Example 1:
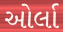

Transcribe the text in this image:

ઓર્લા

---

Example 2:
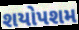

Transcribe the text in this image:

શયોપશમ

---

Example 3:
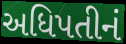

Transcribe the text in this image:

અધિપતીનં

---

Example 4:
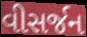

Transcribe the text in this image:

વીસર્જન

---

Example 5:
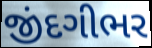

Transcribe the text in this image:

જીંદગીભર